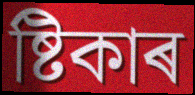
ষ্টিকাৰ